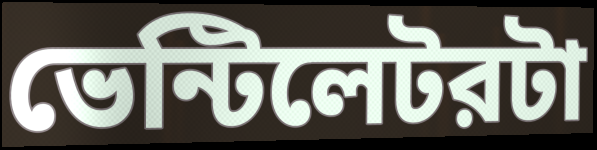
ভেন্টিলেটরটা